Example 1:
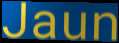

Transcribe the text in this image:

Jaun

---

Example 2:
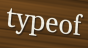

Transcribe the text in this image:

typeof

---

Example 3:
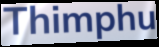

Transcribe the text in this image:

Thimphu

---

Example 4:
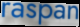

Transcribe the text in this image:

raspan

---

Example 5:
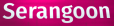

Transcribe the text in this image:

Serangoon